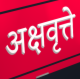
अक्षवृत्ते